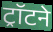
ट्रॉटने